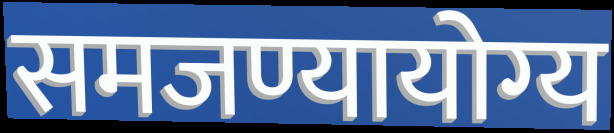
समजण्यायोग्य